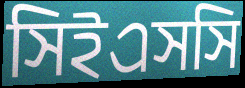
সিইএসসি